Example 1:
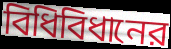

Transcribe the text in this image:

বিধিবিধানের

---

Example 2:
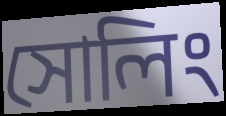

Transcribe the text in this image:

সোলিং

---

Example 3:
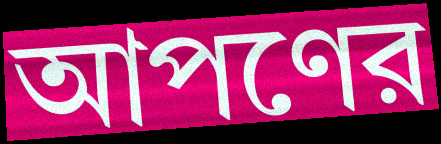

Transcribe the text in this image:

আপণের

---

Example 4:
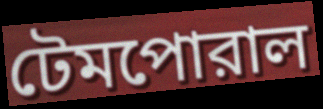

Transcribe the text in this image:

টেমপোরাল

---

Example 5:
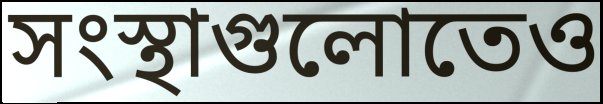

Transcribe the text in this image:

সংস্থাগুলোতেও